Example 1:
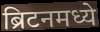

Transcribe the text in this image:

ब्रिटनमध्ये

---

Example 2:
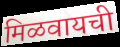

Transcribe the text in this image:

मिळवायची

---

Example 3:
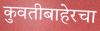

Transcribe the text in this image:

कुवतीबाहेरचा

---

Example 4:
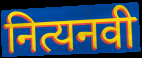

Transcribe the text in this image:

नित्यनवी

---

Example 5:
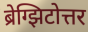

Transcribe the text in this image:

ब्रेग्झिटोत्तर